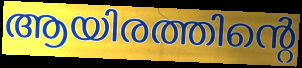
ആയിരത്തിന്റെ